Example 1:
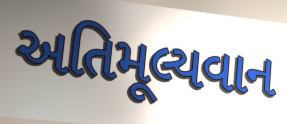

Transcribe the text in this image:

અતિમૂલ્યવાન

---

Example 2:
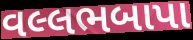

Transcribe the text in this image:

વલ્લભબાપા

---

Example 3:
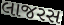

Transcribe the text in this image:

લાજરસ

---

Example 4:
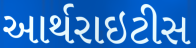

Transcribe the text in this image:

આર્થરાઇટીસ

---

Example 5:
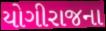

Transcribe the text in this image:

યોગીરાજના